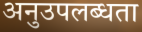
अनुउपलब्धता